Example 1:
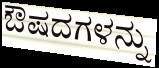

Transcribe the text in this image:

ಔಷದಗಳನ್ನು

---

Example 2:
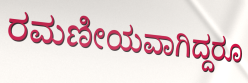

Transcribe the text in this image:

ರಮಣೀಯವಾಗಿದ್ದರೂ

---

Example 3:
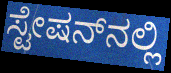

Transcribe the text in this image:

ಸ್ಟೇಷನ್‌ನಲ್ಲಿ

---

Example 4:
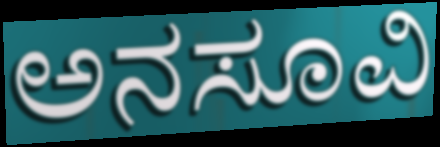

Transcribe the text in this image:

ಅನಸೂವಿ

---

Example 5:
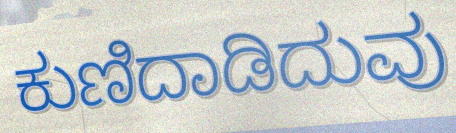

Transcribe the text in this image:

ಕುಣಿದಾಡಿದುವು